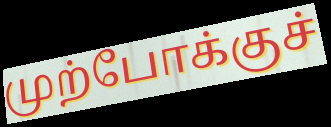
முற்போக்குச்